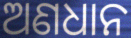
ଅଣଧାନ